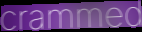
crammed